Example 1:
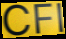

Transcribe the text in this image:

CFI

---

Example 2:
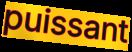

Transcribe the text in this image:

puissant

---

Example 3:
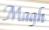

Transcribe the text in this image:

Magh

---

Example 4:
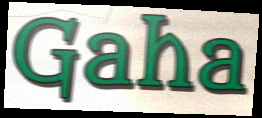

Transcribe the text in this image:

Gaha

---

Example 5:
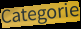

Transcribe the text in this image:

Categorie